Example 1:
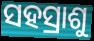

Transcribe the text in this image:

ସହସ୍ରାଶୁ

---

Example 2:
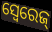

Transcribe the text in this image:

ସ୍ବେରେଜ୍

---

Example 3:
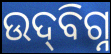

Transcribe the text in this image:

ଉଦ୍‍ବିଗ୍ନ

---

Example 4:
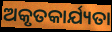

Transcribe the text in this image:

ଅକୃତକାର୍ଯ୍ୟତା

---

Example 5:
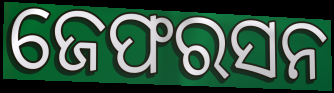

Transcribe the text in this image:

ଜେଫରସନ